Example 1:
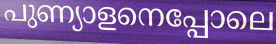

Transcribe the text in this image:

പുണ്യാളനെപ്പോലെ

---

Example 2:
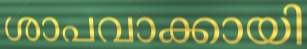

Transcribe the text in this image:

ശാപവാക്കായി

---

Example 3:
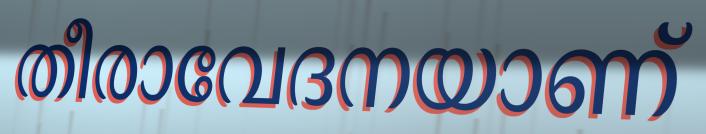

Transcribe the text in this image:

തീരാവേദനയാണ്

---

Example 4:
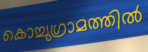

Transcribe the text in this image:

കൊച്ചുഗ്രാമത്തിൽ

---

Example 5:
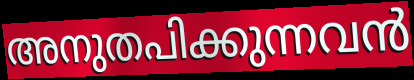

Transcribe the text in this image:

അനുതപിക്കുന്നവൻ